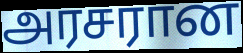
அரசரான